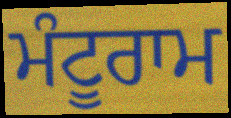
ਮੰਟੂਰਾਮ